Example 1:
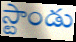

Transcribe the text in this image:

స్టాండు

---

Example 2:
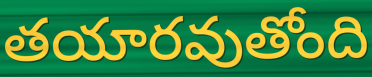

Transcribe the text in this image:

తయారవుతోంది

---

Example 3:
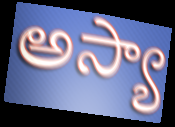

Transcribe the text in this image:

అస్యా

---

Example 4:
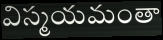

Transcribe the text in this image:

విస్మయమంతా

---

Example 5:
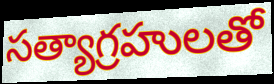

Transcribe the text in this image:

సత్యాగ్రహులతో